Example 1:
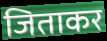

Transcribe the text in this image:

जिताकर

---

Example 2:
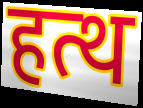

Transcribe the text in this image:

हत्थ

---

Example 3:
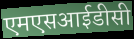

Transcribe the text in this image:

एमएसआईडीसी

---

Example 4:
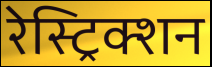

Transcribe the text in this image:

रेस्ट्रिक्शन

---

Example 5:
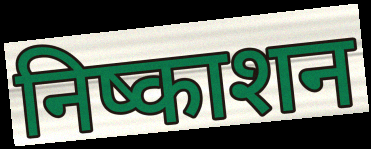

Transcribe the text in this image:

निष्काशन